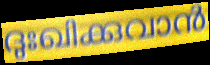
ദുഃഖിക്കുവാൻ